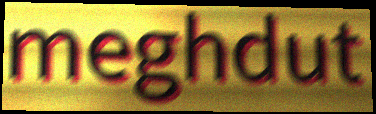
meghdut